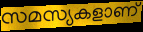
സമസ്യകളാണ്